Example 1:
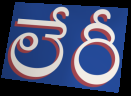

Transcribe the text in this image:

లేరీ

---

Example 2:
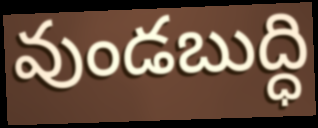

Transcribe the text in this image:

వుండబుద్ధి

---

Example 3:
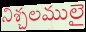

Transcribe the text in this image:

నిశ్చలములై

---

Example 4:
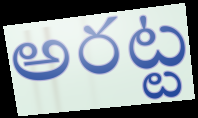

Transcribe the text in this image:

అరట్ట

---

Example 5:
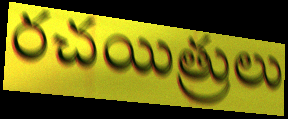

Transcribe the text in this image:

రచయిత్రులు